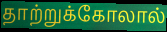
தாற்றுக்கோலால்